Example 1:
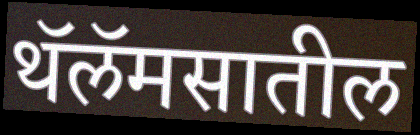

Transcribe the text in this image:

थॅलॅमसातील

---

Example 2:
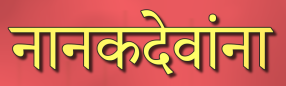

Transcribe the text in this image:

नानकदेवांना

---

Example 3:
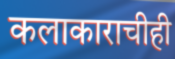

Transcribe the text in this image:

कलाकाराचीही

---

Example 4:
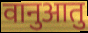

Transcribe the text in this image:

वानुआतु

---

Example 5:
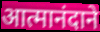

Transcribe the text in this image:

आत्मानंदाने